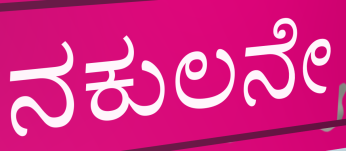
ನಕುಲನೇ